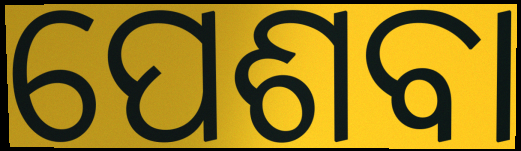
ପେଶବା